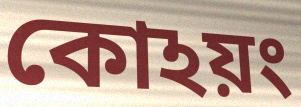
কোঽয়ং